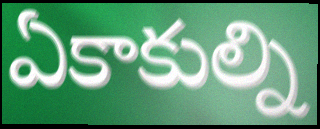
ఏకాకుల్ని